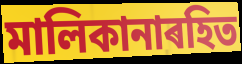
মালিকানাৰহিত